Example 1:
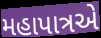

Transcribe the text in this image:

મહાપાત્રએ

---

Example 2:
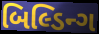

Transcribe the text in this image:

બિલ્ડિન્ગ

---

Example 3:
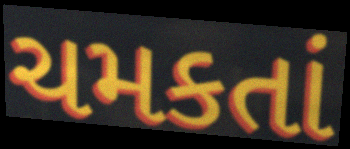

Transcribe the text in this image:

ચમકતાં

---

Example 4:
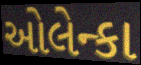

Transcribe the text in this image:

ઓલેન્કા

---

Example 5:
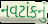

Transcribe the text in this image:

નવટાંકનું